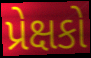
પ્રેક્ષકો